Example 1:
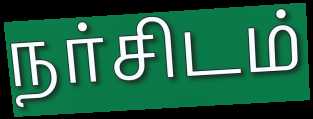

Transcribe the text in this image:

நர்சிடம்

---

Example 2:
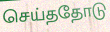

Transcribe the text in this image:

செய்ததோடு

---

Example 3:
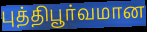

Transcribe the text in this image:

புத்திபூர்வமான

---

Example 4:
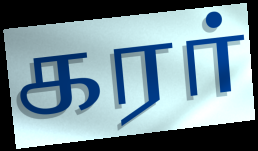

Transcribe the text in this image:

கரர்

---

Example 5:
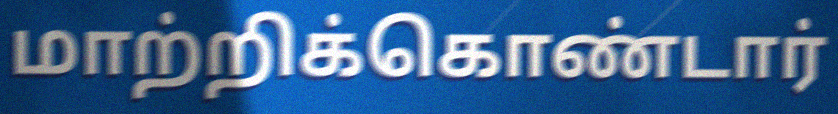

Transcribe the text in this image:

மாற்றிக்கொண்டார்